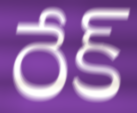
రేక్